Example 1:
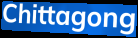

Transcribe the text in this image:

Chittagong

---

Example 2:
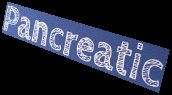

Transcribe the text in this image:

Pancreatic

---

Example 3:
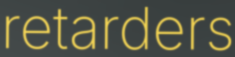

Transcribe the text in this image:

retarders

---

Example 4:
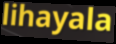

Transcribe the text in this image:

lihayala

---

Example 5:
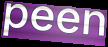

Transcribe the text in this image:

peen